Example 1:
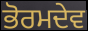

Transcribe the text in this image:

ਭੋਰਮਦੇਵ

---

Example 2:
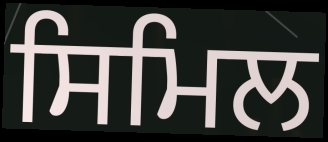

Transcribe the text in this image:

ਸਿਮਿਲ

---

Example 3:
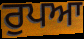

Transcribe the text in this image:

ਰੁਪਆ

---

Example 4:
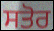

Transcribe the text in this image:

ਸਤੋਰ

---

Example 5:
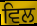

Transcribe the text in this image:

ਵਿਲ